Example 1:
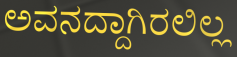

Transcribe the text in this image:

ಅವನದ್ದಾಗಿರಲಿಲ್ಲ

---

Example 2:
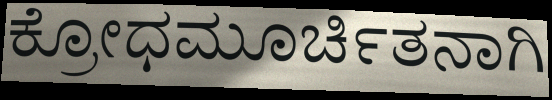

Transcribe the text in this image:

ಕ್ರೋಧಮೂರ್ಚಿತನಾಗಿ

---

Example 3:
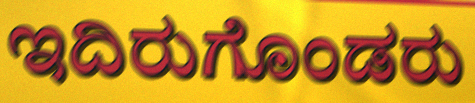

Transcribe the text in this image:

ಇದಿರುಗೊಂಡರು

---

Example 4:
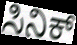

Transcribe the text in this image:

ಸಿನಿಕ್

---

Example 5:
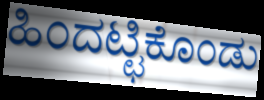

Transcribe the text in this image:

ಹಿಂದಟ್ಟಿಕೊಂಡು